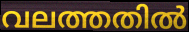
വലത്തതിൽ